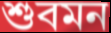
শুবমন